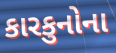
કારકુનોના